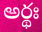
అర్థః